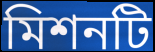
মিশনটি